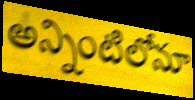
అన్నింటిలోనూ